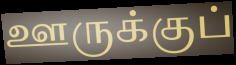
ஊருக்குப்